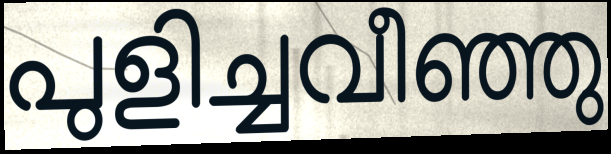
പുളിച്ചവീഞ്ഞു